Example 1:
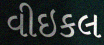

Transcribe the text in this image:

વીઇકલ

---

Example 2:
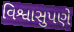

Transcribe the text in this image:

વિશ્વાસુપણે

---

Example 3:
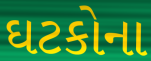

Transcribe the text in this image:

ઘટકોના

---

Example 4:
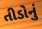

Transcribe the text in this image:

તીડોનું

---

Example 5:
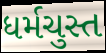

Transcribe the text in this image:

ધર્મચુસ્ત